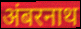
अंबरनाथ